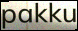
pakku